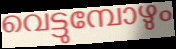
വെട്ടുമ്പോഴും